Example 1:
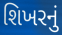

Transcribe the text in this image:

શિખરનું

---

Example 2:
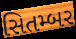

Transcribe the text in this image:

સિતમ્બર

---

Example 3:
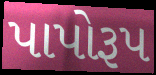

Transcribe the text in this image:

પાપોરૂપ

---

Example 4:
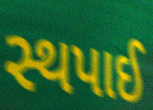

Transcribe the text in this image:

સ્થપાઈ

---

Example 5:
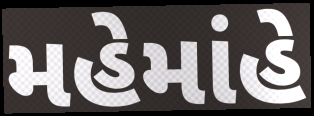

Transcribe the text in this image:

મહેમાંહે